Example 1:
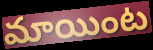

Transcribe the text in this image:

మాయింట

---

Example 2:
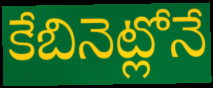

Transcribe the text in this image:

కేబినెట్లోనే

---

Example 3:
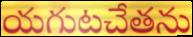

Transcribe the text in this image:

యగుటచేతను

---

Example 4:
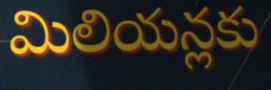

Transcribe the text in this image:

మిలియన్లకు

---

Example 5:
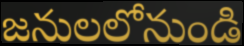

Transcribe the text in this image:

జనులలోనుండి